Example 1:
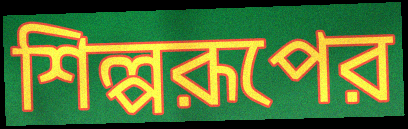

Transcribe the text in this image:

শিল্পরূপের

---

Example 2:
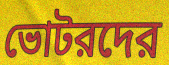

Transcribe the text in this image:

ভোটরদের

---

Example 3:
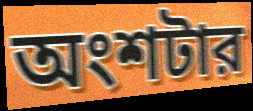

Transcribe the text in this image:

অংশটার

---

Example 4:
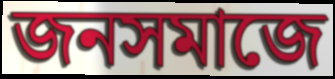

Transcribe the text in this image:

জনসমাজে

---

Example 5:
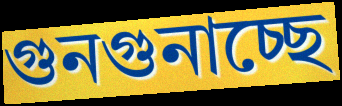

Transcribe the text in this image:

গুনগুনাচ্ছে